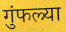
गुंफल्या